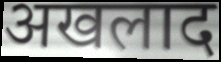
अखलाद